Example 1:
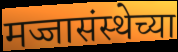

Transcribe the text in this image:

मज्जासंस्थेच्या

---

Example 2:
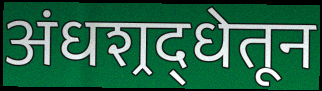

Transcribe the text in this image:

अंधश्रद्धेतून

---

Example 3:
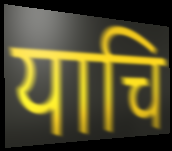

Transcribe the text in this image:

याचि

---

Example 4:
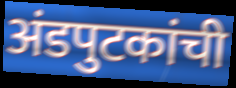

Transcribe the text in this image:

अंडपुटकांची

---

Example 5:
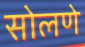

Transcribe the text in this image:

सोलणे